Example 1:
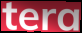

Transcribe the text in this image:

tera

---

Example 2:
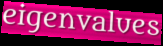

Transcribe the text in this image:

eigenvalues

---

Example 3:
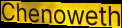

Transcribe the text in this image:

Chenoweth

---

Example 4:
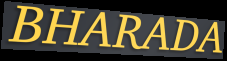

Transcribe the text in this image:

BHARADA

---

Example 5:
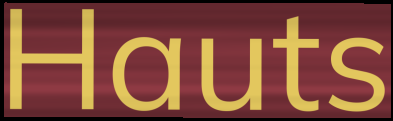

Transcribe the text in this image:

Hauts